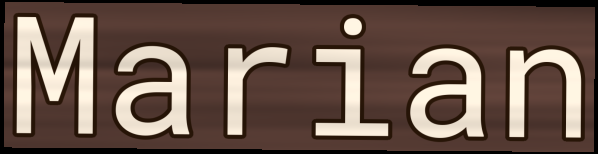
Marian